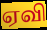
ஏவி